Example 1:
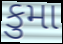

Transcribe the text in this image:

કુમા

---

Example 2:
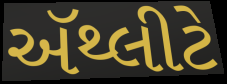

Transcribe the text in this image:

ઍથ્લીટે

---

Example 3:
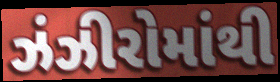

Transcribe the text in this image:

ઝંઝીરોમાંથી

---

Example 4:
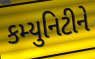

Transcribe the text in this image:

કમ્યુનિટીને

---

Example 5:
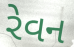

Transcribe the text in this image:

રેવન